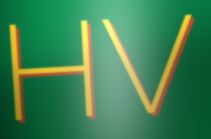
HV